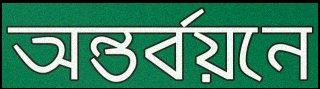
অন্তর্বয়নে